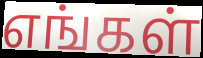
எங்கள்